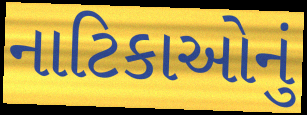
નાટિકાઓનું